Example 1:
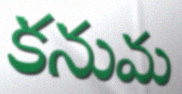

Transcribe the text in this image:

కనుమ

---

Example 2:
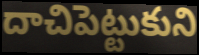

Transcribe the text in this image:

దాచిపెట్టుకుని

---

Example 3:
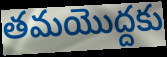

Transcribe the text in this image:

తమయొద్దకు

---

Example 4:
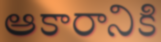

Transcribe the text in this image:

ఆకారానికి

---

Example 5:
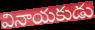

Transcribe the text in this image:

వినాయకుడు